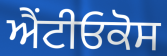
ਐਂਟੀਓਕੋਸ